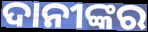
ଦାନୀଙ୍କର